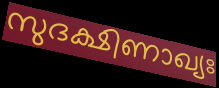
സുദക്ഷിണാഖ്യഃ